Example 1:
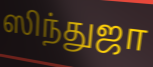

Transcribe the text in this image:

ஸிந்துஜா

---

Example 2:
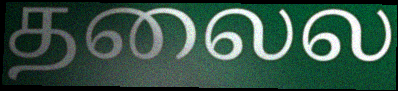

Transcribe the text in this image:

தலைல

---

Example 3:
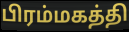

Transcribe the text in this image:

பிரம்மகத்தி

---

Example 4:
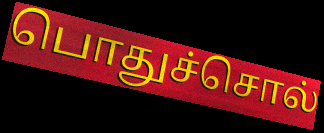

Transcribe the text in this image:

பொதுச்சொல்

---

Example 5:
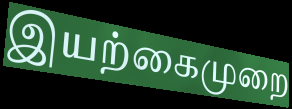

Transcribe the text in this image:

இயற்கைமுறை